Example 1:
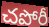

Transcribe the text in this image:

చపోరీ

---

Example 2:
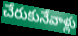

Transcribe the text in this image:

చేరుకునేవాళ్లు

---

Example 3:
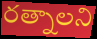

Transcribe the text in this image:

రత్నాలని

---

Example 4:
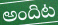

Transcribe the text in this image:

అందిట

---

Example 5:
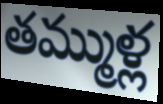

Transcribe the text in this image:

తమ్ముళ్ల